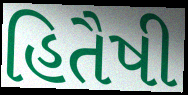
હિતૈષી